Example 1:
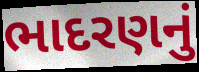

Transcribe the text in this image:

ભાદરણનું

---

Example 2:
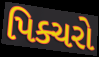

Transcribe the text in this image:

પિક્ચરો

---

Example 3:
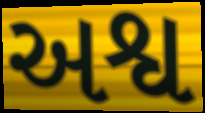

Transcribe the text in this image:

અશ્વ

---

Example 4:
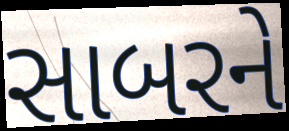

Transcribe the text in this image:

સાબરને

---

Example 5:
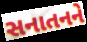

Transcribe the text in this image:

સનાતનને